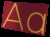
Aa